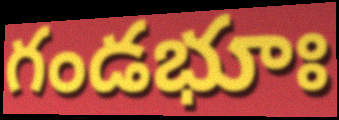
గండభూః